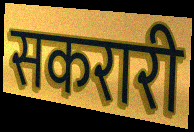
सकरारी